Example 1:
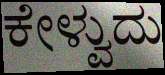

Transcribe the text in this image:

ಕೇಳ್ವುದು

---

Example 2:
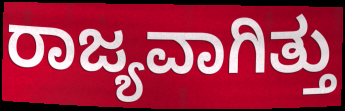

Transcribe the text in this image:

ರಾಜ್ಯವಾಗಿತ್ತು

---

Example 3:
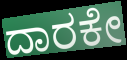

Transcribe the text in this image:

ದಾರಕೇ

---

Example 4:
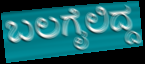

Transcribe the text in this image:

ಬಲಗೈಲಿದ್ದ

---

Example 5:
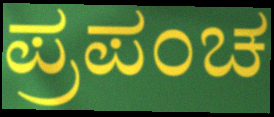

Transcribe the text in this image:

ಪ್ರಪಂಚ